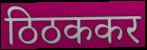
ठिठककर